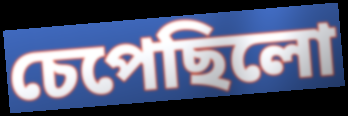
চেপেছিলো